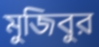
মুজিবুর